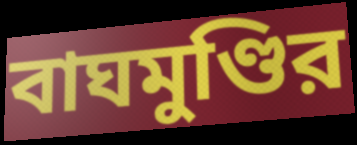
বাঘমুণ্ডির